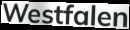
Westfalen